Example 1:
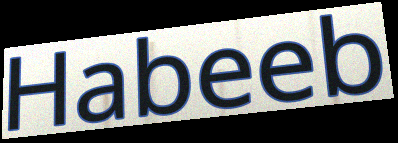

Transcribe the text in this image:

Habeeb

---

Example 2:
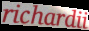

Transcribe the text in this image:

richardii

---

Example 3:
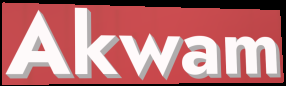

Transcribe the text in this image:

Akwam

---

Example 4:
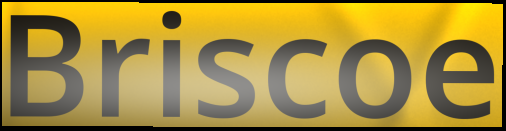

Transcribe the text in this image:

Briscoe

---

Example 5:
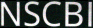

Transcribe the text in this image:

NSCBI